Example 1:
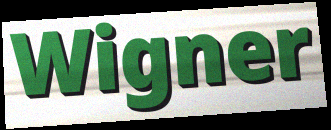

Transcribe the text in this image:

Wigner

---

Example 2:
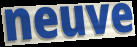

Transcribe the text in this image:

neuve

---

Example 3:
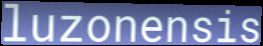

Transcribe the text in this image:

luzonensis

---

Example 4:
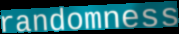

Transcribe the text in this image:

randomness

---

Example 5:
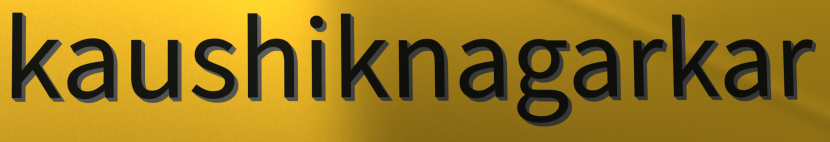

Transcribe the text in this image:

kaushiknagarkar